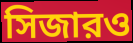
সিজারও